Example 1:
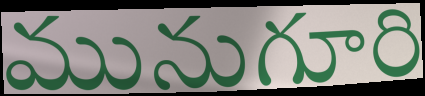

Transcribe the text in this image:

మునుగూరి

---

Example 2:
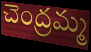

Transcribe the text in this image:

చెంద్రమ్మ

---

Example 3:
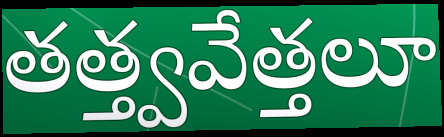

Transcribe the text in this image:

తత్త్వవేత్తలూ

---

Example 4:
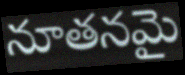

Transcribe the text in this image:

నూతనమై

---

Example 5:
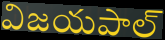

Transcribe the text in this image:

విజయపాల్